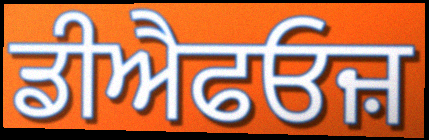
ਡੀਐਫਓਜ਼